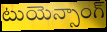
టుయెన్సాంగ్